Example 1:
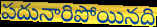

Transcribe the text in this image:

పదునారిపోయినది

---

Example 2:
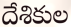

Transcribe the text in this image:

దేశికుల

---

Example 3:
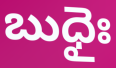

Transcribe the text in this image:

బుధైః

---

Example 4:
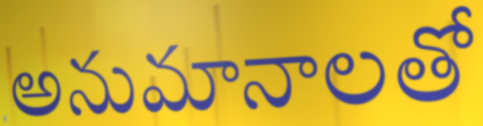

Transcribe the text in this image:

అనుమానాలతో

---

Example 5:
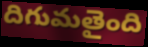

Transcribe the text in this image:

దిగుమతైంది